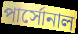
পার্সোনাল